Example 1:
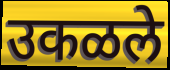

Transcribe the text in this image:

उकळले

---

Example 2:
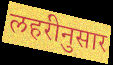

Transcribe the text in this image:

लहरीनुसार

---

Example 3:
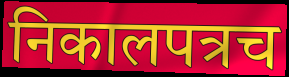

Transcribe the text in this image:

निकालपत्रच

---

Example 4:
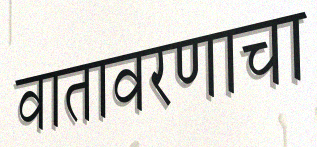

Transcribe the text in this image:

वातावरणाचा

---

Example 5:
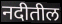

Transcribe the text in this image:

नदीतील